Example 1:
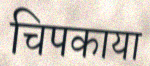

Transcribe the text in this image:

चिपकाया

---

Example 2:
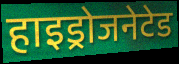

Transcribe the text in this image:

हाइड्रोजनेटेड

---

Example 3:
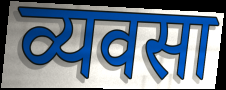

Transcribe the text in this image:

व्यवसा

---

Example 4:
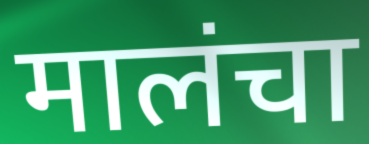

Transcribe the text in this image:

मालंचा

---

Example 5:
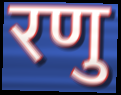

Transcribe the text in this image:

रणु